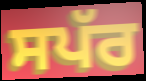
ਸਪੱਰ